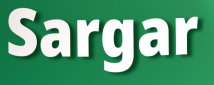
Sargar